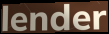
lender